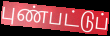
புண்பட்டுப்